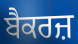
ਬੈਕਰਜ਼